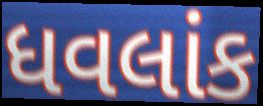
ધવલાંક